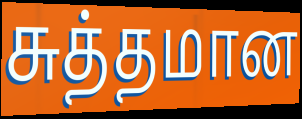
சுத்தமான